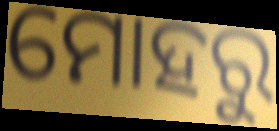
ମୋହରୁ